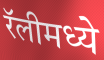
रॅलीमध्ये